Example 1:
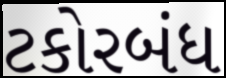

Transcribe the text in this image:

ટકોરબંધ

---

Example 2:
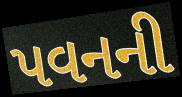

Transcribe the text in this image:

પવનની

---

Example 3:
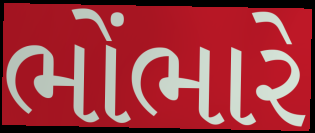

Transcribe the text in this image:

ભોંભારે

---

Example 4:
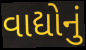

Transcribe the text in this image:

વાદ્યોનું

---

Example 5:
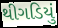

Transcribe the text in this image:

થીગડિયું